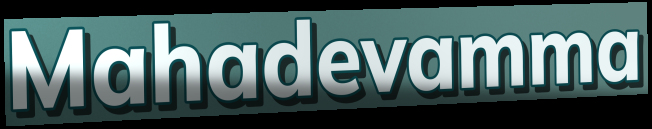
Mahadevamma